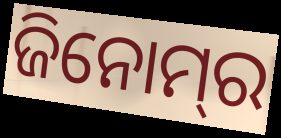
ଜିନୋମ୍‌ର